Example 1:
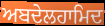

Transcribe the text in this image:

ਅਬਦੇਲਹਾਮਿਦ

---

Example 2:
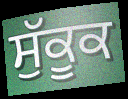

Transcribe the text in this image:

ਸੁੱਕੂਕ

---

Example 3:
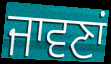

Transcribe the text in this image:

ਜਾਵਣਾਂ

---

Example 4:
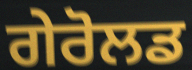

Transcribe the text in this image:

ਗੇਰੋਲਡ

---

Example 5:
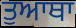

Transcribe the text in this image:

ਤੁਆਥਾ